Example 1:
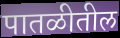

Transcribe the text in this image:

पातळीतील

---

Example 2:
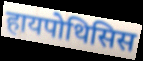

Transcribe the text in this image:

हायपोथिसिस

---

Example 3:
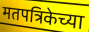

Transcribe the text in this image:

मतपत्रिकेच्या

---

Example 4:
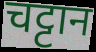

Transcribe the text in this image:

चट्टान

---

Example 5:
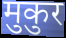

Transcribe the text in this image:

मुकुर